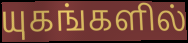
யுகங்களில்